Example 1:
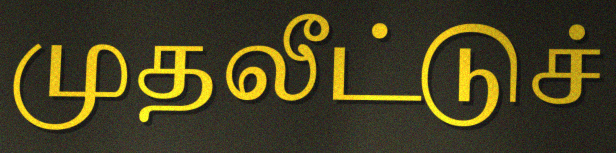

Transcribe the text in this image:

முதலீட்டுச்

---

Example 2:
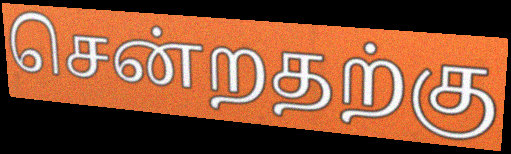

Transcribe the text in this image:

சென்றதற்கு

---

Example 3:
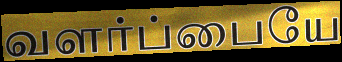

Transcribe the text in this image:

வளர்ப்பையே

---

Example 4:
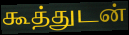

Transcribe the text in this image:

கூத்துடன்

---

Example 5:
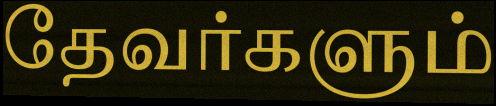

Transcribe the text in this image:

தேவர்களும்